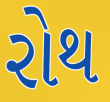
રોથ